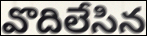
వొదిలేసిన